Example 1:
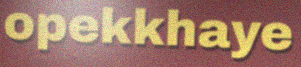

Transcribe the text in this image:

opekkhaye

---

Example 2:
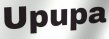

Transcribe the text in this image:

Upupa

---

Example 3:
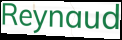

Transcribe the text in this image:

Reynaud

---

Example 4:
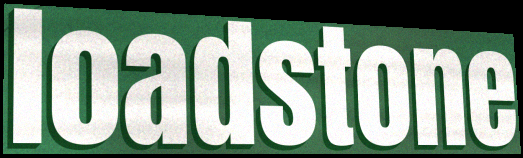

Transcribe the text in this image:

loadstone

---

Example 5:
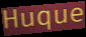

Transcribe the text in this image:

Huque